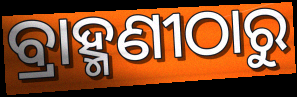
ବ୍ରାହ୍ମଣୀଠାରୁ